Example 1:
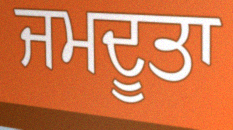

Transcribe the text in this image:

ਜਮਦੂਤਾ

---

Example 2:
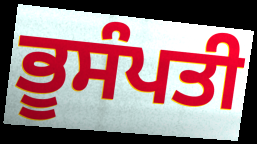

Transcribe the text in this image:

ਭੂਸੰਪਤੀ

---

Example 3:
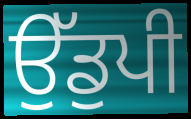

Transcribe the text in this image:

ਉੱਡੁਪੀ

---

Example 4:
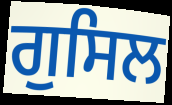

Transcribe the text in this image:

ਗੁਸਿਲ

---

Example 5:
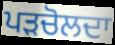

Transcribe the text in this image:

ਪੜਚੋਲਦਾ